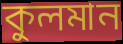
কুলমান